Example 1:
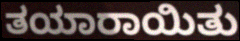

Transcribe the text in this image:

ತಯಾರಾಯಿತು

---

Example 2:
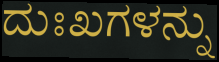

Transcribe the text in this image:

ದುಃಖಗಳನ್ನು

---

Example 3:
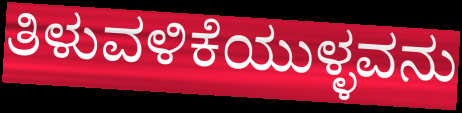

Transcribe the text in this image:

ತಿಳುವಳಿಕೆಯುಳ್ಳವನು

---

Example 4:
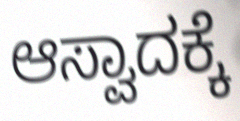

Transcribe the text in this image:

ಆಸ್ವಾದಕ್ಕೆ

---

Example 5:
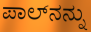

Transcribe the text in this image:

ಪಾಲ್‍ನನ್ನು